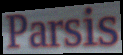
Parsis